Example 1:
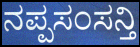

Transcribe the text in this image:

ನಪ್ಪಸಂಸನ್ತಿ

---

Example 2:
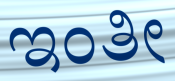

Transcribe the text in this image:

ಇಂತೀ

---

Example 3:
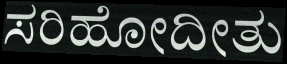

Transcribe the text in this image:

ಸರಿಹೋದೀತು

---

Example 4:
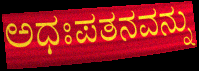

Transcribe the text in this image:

ಅಧಃಪತನವನ್ನು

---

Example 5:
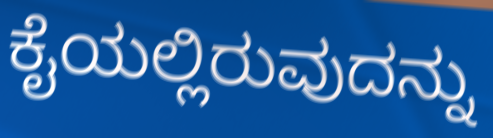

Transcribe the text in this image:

ಕೈಯಲ್ಲಿರುವುದನ್ನು